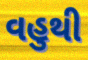
વહુથી